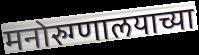
मनोरुग्णालयाच्या